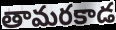
తామరకాడ